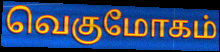
வெகுமோகம்